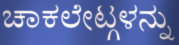
ಚಾಕಲೇಟ್ಗಳನ್ನು